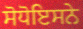
ਸੋਧੋਇਸਨੇ